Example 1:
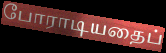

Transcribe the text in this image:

போராடியதைப்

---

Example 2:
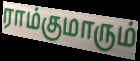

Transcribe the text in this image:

ராம்குமாரும்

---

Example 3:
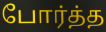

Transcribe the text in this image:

போர்த்த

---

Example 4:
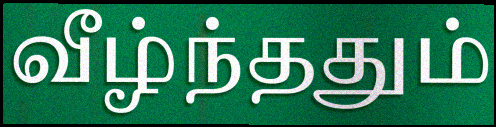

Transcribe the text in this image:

வீழ்ந்ததும்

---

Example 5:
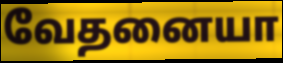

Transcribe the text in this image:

வேதனையா